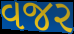
વજર